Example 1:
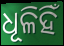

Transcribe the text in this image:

ଧୂଳିହିଁ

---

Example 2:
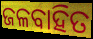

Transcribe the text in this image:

ଜଳବାହିତ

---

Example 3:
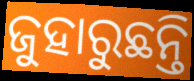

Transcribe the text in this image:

ଜୁହାରୁଛନ୍ତି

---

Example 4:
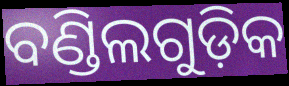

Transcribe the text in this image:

ବଣ୍ଡିଲଗୁଡ଼ିକ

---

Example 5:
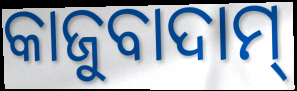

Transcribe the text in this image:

କାଜୁବାଦାମ୍